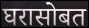
घरासोबत